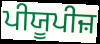
ਪੀਯੂਪੀਜ਼